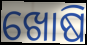
ଖୋଷି